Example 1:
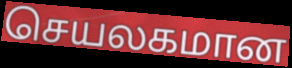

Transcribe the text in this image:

செயலகமான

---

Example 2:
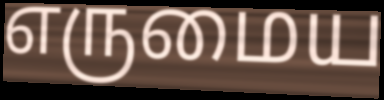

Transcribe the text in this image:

எருமைய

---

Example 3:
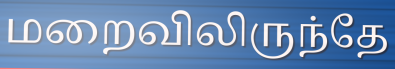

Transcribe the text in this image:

மறைவிலிருந்தே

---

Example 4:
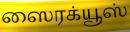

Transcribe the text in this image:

ஸைரக்யூஸ்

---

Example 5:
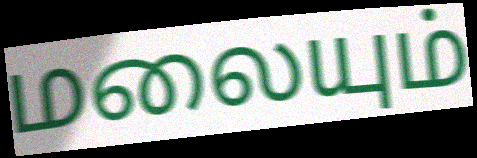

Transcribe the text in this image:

மலையும்